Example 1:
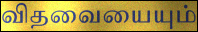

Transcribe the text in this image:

விதவையையும்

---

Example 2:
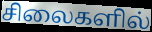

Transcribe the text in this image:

சிலைகளில்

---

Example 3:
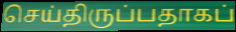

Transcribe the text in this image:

செய்திருப்பதாகப்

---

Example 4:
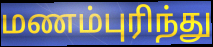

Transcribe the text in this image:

மணம்புரிந்து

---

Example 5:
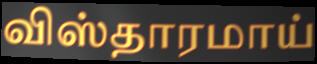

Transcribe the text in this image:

விஸ்தாரமாய்